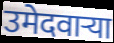
उमेदवाऱ्या